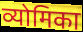
व्योमिका